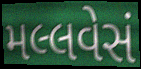
મલ્લવેસં